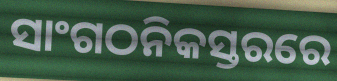
ସାଂଗଠନିକସ୍ତରରେ